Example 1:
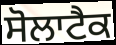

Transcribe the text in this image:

ਸੋਲਾਟੈਕ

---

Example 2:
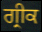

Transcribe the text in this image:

ਗ੍ਰੀਕ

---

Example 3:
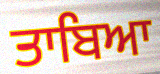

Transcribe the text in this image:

ਤਾਬਿਆ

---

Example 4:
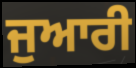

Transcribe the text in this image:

ਜੁਆਰੀ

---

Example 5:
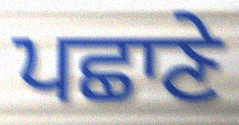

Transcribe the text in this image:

ਪਛਾਣੇ